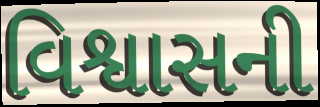
વિશ્વાસની